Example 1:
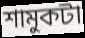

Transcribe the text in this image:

শামুকটা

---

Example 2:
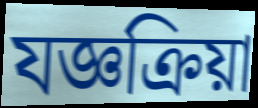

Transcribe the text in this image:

যজ্ঞক্রিয়া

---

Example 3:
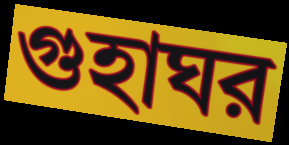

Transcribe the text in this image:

গুহাঘর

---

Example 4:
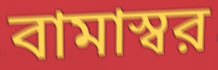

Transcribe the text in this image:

বামাস্বর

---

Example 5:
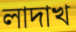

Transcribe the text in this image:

লাদাখ